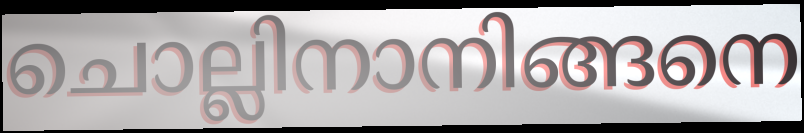
ചൊല്ലിനാനിങ്ങനെ